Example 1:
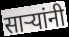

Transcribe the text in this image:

साऱ्यांनी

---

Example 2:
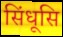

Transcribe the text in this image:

सिंधूसि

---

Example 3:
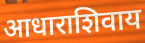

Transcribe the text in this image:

आधाराशिवाय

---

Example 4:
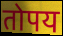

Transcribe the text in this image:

तोपय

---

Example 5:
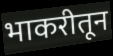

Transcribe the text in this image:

भाकरीतून